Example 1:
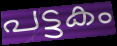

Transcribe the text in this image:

പട്ടകം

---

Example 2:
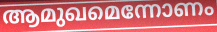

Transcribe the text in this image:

ആമുഖമെന്നോണം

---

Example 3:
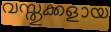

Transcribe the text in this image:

വസ്തുക്കളായ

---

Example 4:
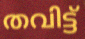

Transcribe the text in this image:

തവിട്ട്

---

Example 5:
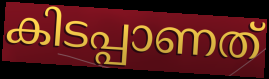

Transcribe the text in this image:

കിടപ്പാണത്